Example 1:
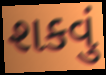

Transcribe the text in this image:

શકવું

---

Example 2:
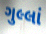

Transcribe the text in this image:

ગુલ્લાં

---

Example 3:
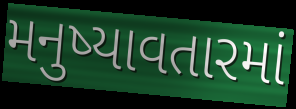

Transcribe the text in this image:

મનુષ્યાવતારમાં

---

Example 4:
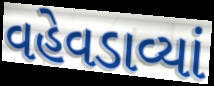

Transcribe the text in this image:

વહેવડાવ્યાં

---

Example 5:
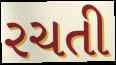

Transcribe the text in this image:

રચતી